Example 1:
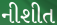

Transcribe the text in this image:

નીશીત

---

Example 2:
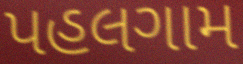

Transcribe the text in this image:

પહલગામ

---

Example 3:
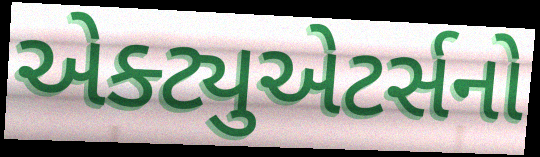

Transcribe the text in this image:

એક્ટ્યુએટર્સનો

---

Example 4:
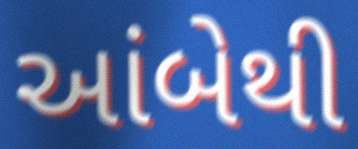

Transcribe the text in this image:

આંબેથી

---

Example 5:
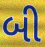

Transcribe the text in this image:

બી